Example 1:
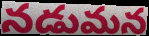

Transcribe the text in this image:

నడుమన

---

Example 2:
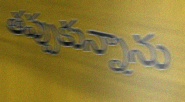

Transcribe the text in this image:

తప్పుకున్నాను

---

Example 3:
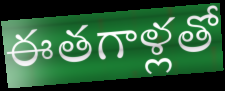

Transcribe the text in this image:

ఈతగాళ్లతో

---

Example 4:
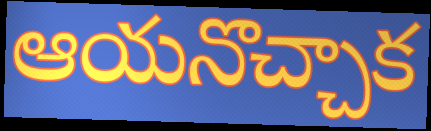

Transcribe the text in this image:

ఆయనొచ్చాక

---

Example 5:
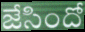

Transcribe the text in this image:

జేసిందో